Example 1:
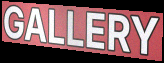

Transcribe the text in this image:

GALLERY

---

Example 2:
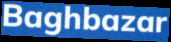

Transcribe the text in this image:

Baghbazar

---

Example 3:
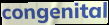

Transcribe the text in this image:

congenital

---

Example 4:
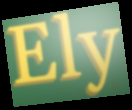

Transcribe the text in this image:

Ely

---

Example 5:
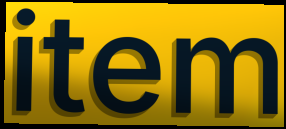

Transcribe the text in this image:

item